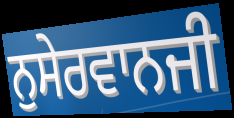
ਨੁਸੇਰਵਾਨਜੀ